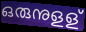
ഒരുനുളള്